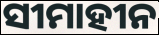
ସୀମାହୀନ